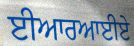
ਈਆਰਆਈਏ